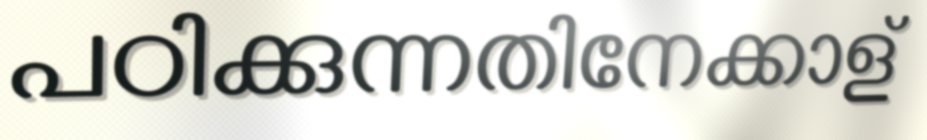
പഠിക്കുന്നതിനേക്കാള്